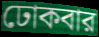
ঢোকবার